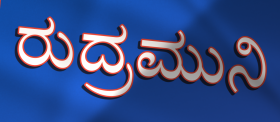
ರುದ್ರಮುನಿ